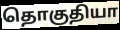
தொகுதியா